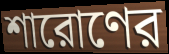
শারোণের